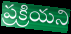
ప్రక్రియని